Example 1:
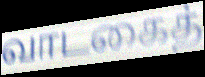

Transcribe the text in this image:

வாடகைத்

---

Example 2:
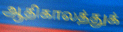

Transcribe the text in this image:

ஆதிகாலத்துக்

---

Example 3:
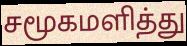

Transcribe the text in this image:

சமூகமளித்து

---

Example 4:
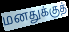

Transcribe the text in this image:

மனதுக்குத்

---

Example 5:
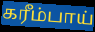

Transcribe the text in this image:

கரீம்பாய்